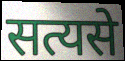
सत्यसे